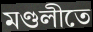
মণ্ডলীতে